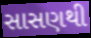
સાસણથી